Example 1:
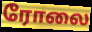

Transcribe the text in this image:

ரோலை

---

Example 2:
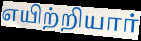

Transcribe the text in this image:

எயிற்றியார்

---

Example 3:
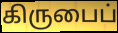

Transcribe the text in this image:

கிருபைப்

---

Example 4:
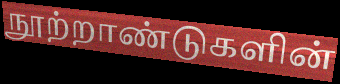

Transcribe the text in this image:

நூற்றாண்டுகளின்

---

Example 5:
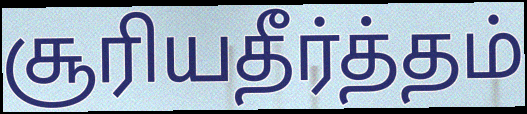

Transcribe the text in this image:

சூரியதீர்த்தம்